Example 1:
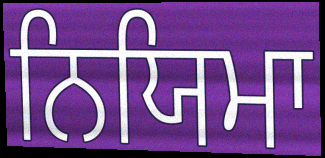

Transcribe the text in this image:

ਨਿਯਿਮਾ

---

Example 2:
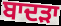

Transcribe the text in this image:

ਬਾਦੜਾ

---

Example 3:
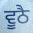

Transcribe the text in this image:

ਵੂਠੈ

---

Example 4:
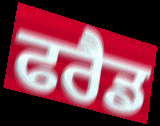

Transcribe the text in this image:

ਫਰੈਡ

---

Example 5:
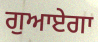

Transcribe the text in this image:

ਗੁਆਏਗਾ